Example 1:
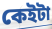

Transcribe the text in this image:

কেইটা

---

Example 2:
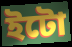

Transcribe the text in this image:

ইটো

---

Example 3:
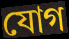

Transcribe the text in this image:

যোগ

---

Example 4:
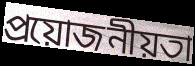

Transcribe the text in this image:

প্ৰয়োজনীয়তা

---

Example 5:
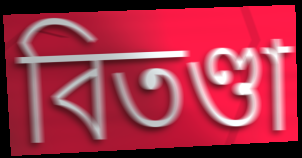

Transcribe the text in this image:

বিতণ্ডা